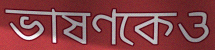
ভাষণকেও